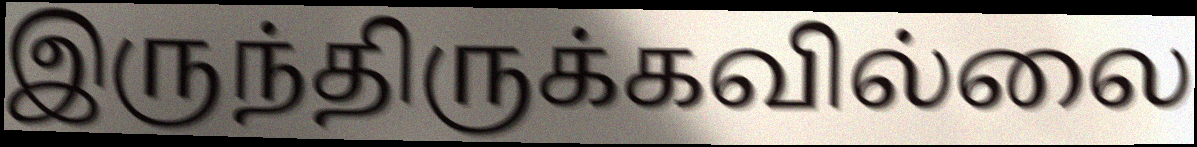
இருந்திருக்கவில்லை